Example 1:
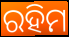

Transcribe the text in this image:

ରହିମ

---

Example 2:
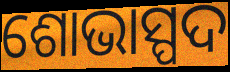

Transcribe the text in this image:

ଶୋଭାସ୍ପଦ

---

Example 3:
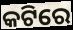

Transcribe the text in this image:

କଟିରେ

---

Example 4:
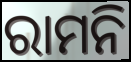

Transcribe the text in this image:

ରାମନି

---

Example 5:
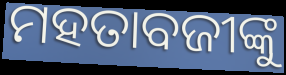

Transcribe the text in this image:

ମହତାବଜୀଙ୍କୁ